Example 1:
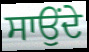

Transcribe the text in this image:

ਸਾਉਂਦੇ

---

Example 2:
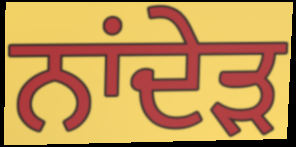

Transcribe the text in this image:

ਨਾਂਦੇੜ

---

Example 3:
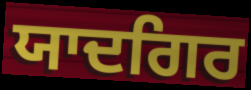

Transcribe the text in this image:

ਯਾਦਗਿਰ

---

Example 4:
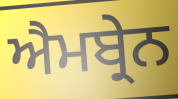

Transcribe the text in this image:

ਐਮਬ੍ਰੇਨ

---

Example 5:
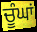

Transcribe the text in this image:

ਚੂੰਘਾਂ